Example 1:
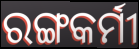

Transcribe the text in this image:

ରଙ୍ଗକର୍ମୀ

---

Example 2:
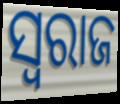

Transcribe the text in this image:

ସ୍ଵରାଜ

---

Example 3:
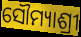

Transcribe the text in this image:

ସୌମ୍ୟାଶ୍ରୀ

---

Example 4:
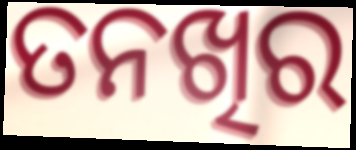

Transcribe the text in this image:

ତନଖିର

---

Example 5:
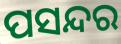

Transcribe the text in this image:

ପସନ୍ଦର